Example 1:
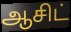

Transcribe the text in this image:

ஆசிட்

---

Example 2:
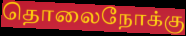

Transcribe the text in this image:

தொலைநோக்கு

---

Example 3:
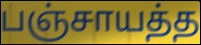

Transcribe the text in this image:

பஞ்சாயத்த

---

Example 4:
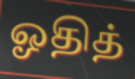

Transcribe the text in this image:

ஓதித்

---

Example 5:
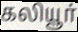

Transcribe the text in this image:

கலியூர்